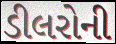
ડીલરોની